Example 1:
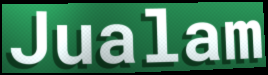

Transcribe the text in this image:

Jualam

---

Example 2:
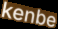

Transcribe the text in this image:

kenbe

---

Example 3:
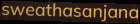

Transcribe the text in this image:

sweathasanjana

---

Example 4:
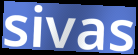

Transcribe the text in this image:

sivas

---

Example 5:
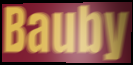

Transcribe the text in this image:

Bauby